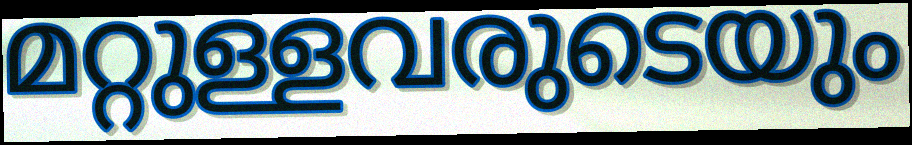
മറ്റുള്ളവരുടെയും